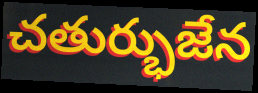
చతుర్భుజేన